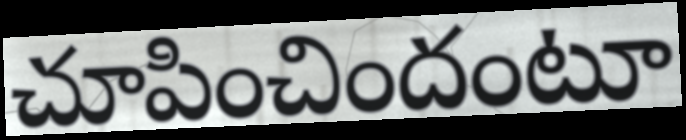
చూపించిందంటూ